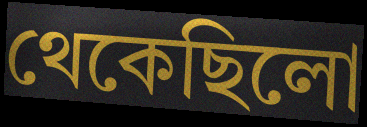
থেকেছিলো